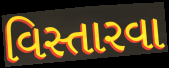
વિસ્તારવા